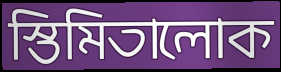
স্তিমিতালোক